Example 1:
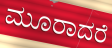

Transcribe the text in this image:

ಮೂರಾದರೆ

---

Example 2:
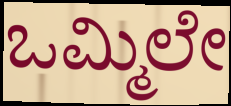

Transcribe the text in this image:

ಒಮ್ಮಿಲೇ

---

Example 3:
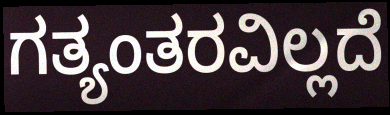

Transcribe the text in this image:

ಗತ್ಯಂತರವಿಲ್ಲದೆ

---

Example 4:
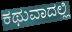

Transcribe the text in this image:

ಕಥುವಾದಲ್ಲಿ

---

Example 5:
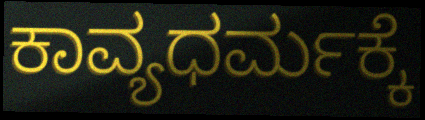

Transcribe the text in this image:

ಕಾವ್ಯಧರ್ಮಕ್ಕೆ